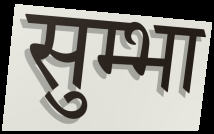
सुम्भा